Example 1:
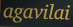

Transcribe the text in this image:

agavilai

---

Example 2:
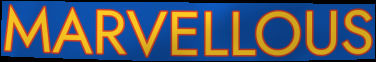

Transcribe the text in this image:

MARVELLOUS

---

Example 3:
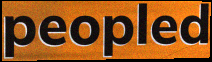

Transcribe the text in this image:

peopled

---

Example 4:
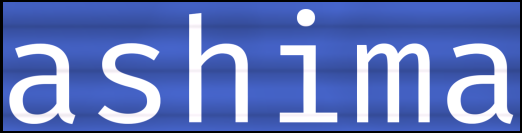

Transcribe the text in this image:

ashima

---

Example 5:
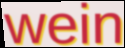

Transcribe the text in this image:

wein